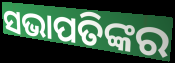
ସଭାପତିଙ୍କର